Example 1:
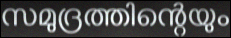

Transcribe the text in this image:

സമുദ്രത്തിന്റെയും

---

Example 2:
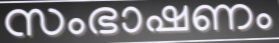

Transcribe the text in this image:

സംഭാഷണം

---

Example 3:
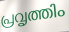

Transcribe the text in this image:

പ്രവൃത്തിം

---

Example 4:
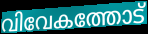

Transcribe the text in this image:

വിവേകത്തോട്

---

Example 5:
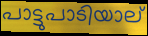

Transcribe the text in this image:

പാട്ടുപാടിയാല്